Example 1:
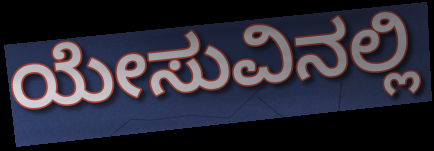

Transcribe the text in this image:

ಯೇಸುವಿನಲ್ಲಿ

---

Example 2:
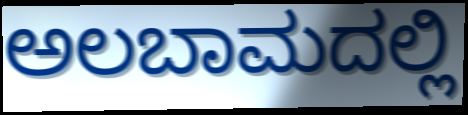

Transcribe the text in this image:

ಅಲಬಾಮದಲ್ಲಿ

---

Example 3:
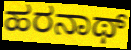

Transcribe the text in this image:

ಹರನಾಥ್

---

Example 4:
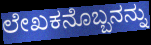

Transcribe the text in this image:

ಲೇಖಕನೊಬ್ಬನನ್ನು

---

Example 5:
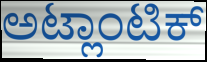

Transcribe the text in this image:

ಅಟ್ಲಾಂಟಿಕ್